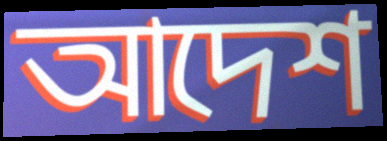
আদেশ